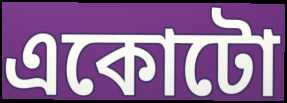
একোটো